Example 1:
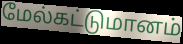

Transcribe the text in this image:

மேல்கட்டுமானம்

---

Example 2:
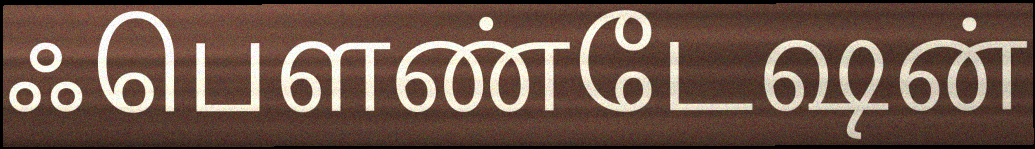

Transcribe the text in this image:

ஃபௌண்டேஷன்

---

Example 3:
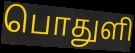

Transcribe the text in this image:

பொதுளி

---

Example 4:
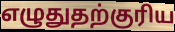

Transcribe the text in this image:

எழுதுதற்குரிய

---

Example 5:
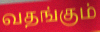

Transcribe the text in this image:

வதங்கும்